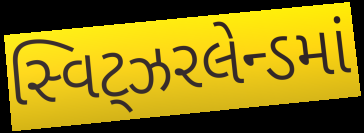
સ્વિટ્ઝરલેન્ડમાં